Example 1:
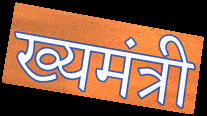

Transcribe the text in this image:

ख्यमंत्री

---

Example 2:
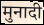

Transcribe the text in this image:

मुनादी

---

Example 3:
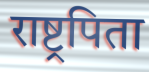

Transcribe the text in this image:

राष्ट्रपिता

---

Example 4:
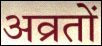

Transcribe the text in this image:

अव्रतों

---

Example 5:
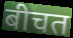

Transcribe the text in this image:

बीचत